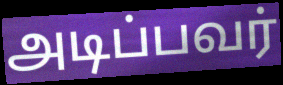
அடிப்பவர்